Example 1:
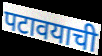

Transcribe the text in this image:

पटावयाची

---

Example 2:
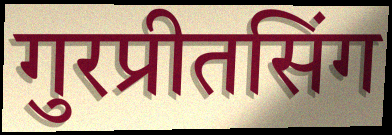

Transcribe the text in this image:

गुरप्रीतसिंग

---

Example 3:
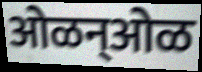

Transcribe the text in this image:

ओळन्ओळ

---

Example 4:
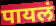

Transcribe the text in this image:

पायलं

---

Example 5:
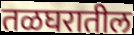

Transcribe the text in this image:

तळघरातील